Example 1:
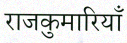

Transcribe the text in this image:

राजकुमारियाँ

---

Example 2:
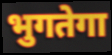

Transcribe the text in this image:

भुगतेगा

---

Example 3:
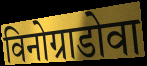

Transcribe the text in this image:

विनोग्राडोवा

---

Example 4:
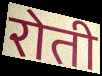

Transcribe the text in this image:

रोती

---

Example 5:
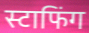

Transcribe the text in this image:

स्टाफिंग